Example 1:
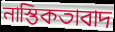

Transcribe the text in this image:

নাস্তিকতাবাদ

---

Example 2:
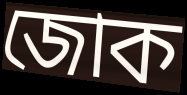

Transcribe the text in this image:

জোক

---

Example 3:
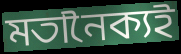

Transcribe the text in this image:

মতানৈক্যই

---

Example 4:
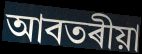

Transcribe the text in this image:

আবতৰীয়া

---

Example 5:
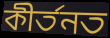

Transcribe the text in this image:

কীৰ্তনত